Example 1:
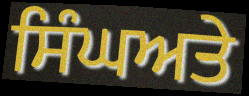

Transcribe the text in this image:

ਸਿੰਘਅਤੇ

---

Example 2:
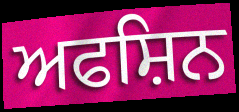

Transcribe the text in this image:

ਅਫਸ਼ਿਨ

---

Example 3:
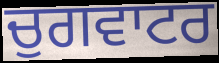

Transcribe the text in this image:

ਚੁਗਵਾਟਰ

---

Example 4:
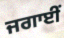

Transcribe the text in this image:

ਜਗਾਈਂ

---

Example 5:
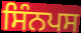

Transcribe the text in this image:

ਸਿੰਨਪਸ